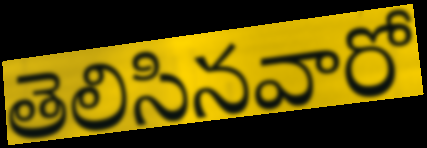
తెలిసినవారో